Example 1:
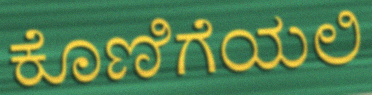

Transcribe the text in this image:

ಕೊಣಿಗೆಯಲಿ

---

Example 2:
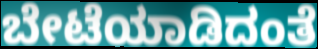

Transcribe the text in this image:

ಬೇಟೆಯಾಡಿದಂತೆ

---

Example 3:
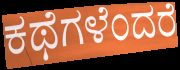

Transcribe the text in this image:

ಕಥೆಗಳೆಂದರೆ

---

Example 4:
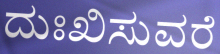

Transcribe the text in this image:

ದುಃಖಿಸುವರೆ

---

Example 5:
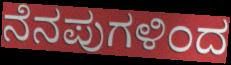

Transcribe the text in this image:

ನೆನಪುಗಳಿಂದ